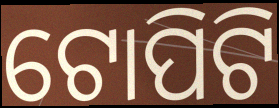
ଟୋପିଟି